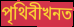
পৃথিবীখনত